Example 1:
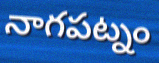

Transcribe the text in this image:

నాగపట్నం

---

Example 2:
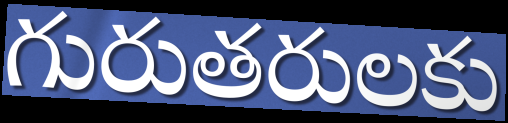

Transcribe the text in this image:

గురుతరులకు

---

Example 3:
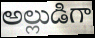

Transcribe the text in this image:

అల్లుడిగా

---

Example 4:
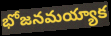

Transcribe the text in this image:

భోజనమయ్యాక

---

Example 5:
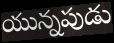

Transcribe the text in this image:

యున్నపుడు